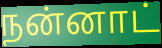
நன்னாட்